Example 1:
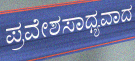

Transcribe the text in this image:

ಪ್ರವೇಶಸಾಧ್ಯವಾದ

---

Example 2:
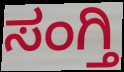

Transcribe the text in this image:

ಸಂಗ್ತಿ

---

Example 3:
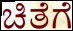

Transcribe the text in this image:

ಚಿತೆಗೆ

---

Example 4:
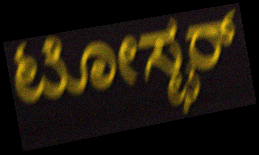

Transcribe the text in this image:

ಟೋಸ್ಟರ್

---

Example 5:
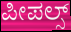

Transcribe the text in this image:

ಪೀಪಲ್ಸ್